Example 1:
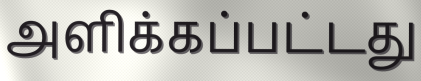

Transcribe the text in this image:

அளிக்கப்பட்டது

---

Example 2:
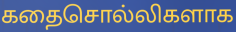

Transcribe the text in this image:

கதைசொல்லிகளாக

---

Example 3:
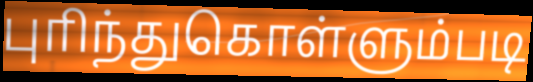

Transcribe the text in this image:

புரிந்துகொள்ளும்படி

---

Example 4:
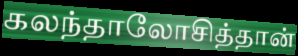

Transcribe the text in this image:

கலந்தாலோசித்தான்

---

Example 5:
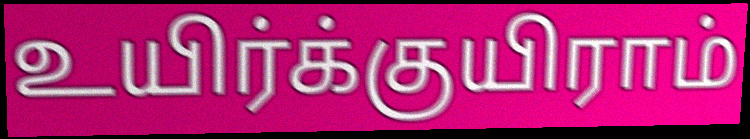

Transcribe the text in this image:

உயிர்க்குயிராம்